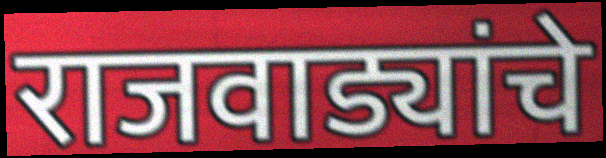
राजवाड्यांचे